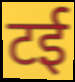
टई